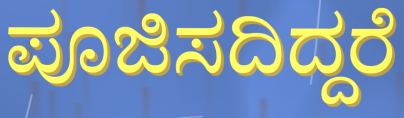
ಪೂಜಿಸದಿದ್ದರೆ